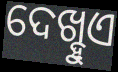
ଦେଖ୍ହୁଏ